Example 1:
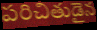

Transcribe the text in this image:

పరిచితుడైన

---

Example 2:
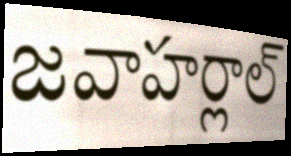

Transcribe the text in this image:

జవాహర్లాల్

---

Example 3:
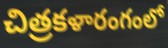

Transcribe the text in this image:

చిత్రకళారంగంలో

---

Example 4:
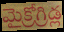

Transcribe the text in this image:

మైక్రోగ్రిడ్ల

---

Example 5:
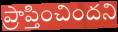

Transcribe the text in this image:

ప్రాప్తించిందని